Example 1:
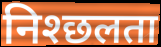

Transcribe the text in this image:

निश्छलता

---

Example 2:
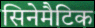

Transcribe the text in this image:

सिनेमैटिक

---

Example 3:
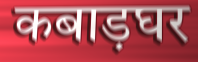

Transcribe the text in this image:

कबाड़घर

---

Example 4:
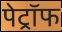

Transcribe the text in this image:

पेट्रॉफ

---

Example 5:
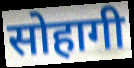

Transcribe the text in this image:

सोहागी